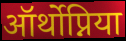
ऑर्थोप्निया